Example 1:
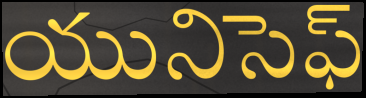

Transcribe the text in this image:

యునిసెఫ్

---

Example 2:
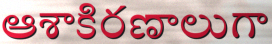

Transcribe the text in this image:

ఆశాకిరణాలుగా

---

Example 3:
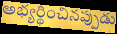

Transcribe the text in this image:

అభ్యర్థించినప్పుడు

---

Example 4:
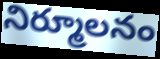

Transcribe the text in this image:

నిర్మూలనం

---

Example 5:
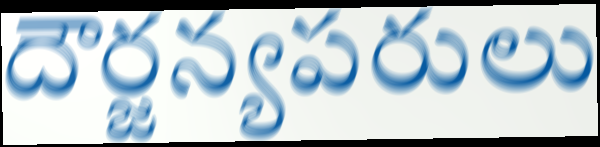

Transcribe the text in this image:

దౌర్జన్యపరులు